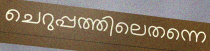
ചെറുപ്പത്തിലെതന്നെ